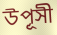
উপূসী